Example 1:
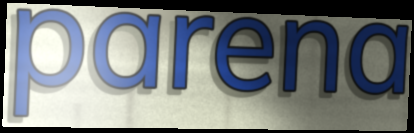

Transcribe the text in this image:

parena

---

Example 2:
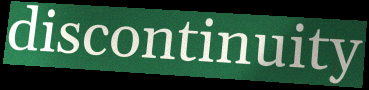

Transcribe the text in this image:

discontinuity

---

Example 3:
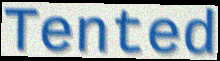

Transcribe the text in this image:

Tented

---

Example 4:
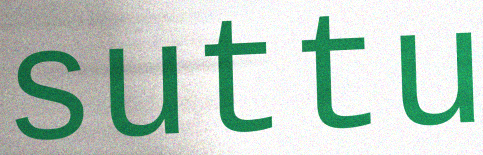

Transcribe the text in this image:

suttu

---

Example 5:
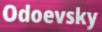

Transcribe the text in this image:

Odoevsky